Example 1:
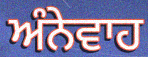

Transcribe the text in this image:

ਅੰਨੇਵਾਹ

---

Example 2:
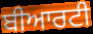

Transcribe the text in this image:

ਬੀਆਰਟੀ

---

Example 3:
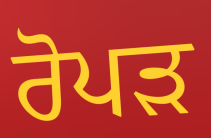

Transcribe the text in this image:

ਰੋਪਡ਼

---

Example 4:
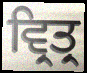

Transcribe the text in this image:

ਵ੍ਰਿਤ੍ਰ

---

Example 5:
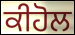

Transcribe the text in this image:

ਕੀਹੋਲ